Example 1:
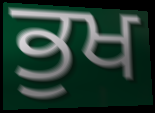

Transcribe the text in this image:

ਭੁਖ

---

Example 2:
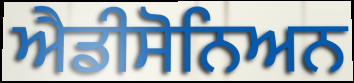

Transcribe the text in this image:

ਐਡੀਸੋਨਿਅਨ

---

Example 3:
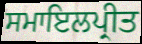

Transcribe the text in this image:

ਸਮਾਇਲਪ੍ਰੀਤ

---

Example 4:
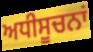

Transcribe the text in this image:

ਅਧੀਸੂਚਨਾਂ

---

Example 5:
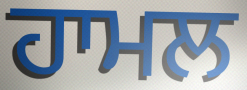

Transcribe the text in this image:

ਹਾਮਲ